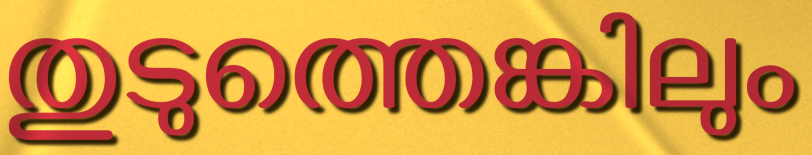
തുടുത്തെങ്കിലും